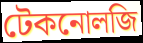
টেকনোলজি